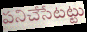
పనిచేసేటట్టు